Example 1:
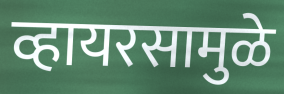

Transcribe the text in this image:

व्हायरसामुळे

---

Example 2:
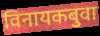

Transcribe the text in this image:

विनायकबुवा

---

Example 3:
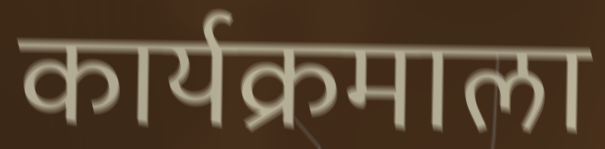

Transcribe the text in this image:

कार्यक्रमाला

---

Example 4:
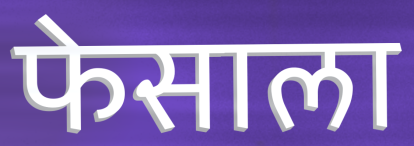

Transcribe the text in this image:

फेसाला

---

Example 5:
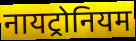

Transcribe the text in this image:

नायट्रोनियम